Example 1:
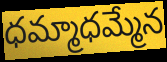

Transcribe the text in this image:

ధమ్మాధమ్మేన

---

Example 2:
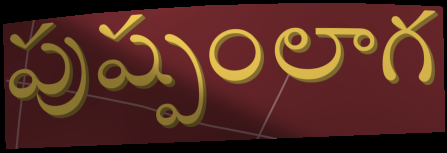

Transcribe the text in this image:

పుష్పంలాగ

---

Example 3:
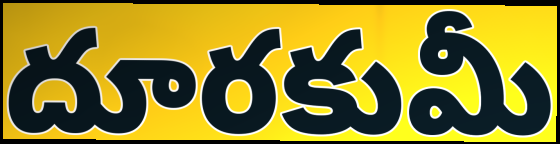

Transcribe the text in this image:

దూరకుమీ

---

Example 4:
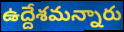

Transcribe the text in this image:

ఉద్దేశమన్నారు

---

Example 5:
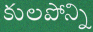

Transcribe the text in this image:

కులపోన్ని